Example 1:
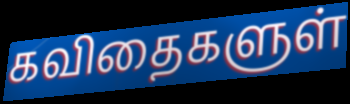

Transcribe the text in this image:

கவிதைகளுள்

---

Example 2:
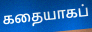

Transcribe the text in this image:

கதையாகப்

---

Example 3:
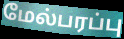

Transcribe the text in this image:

மேல்பரப்பு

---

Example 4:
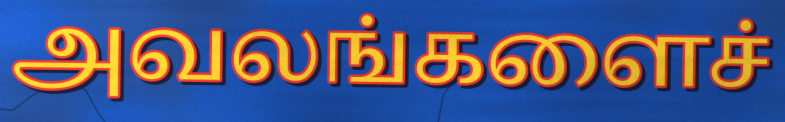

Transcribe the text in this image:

அவலங்களைச்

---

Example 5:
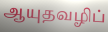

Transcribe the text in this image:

ஆயுதவழிப்